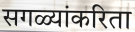
सगळ्यांकरिता